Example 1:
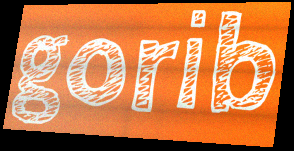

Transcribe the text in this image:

gorib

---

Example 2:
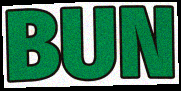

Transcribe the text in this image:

BUN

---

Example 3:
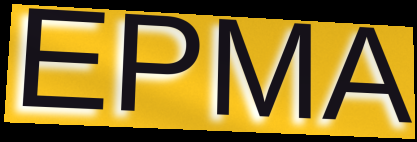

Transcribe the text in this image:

EPMA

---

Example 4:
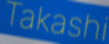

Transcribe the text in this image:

Takashi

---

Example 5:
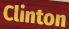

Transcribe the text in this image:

Clinton